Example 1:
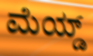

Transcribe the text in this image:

ಮೆಯ್ಡ್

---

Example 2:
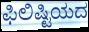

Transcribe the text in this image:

ಫಿಲಿಷ್ಟಿಯದ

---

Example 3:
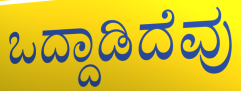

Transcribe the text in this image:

ಒದ್ದಾಡಿದೆವು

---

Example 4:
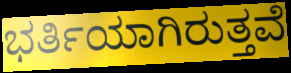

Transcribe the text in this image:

ಭರ್ತಿಯಾಗಿರುತ್ತವೆ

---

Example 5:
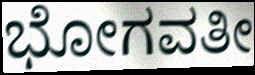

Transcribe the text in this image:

ಭೋಗವತೀ